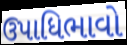
ઉપાધિભાવો